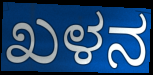
ಖಳನ